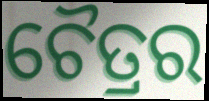
ଚୈତ୍ରର